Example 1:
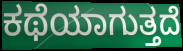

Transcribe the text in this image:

ಕಥೆಯಾಗುತ್ತದೆ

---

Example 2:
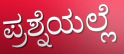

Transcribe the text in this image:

ಪ್ರಶ್ನೆಯಲ್ಲೆ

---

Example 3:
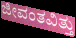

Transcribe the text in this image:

ಜೀವಂತವಿತ್ತು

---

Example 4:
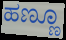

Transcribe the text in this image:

ಹಣ್ಣೂ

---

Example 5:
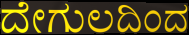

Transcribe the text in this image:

ದೇಗುಲದಿಂದ